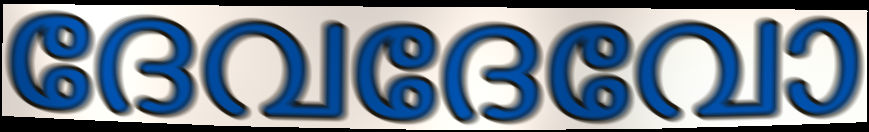
ദേവദേവോ